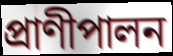
প্রাণীপালন